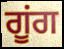
ਗੂਂਗ